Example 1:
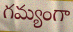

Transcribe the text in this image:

గమ్యంగా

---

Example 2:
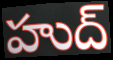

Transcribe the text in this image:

హుద్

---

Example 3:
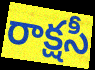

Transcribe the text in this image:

రాక్షసీ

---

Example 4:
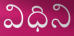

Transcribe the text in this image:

విధిని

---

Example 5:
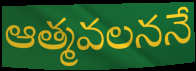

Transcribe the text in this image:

ఆత్మవలననే